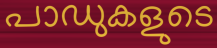
പാഡുകളുടെ